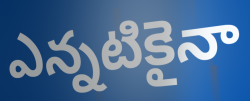
ఎన్నటికైనా